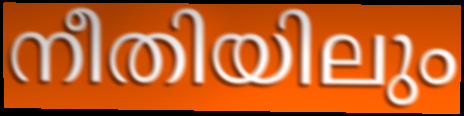
നീതിയിലും